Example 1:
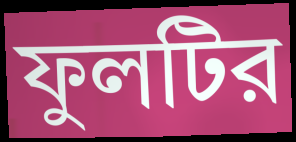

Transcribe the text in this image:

ফুলটির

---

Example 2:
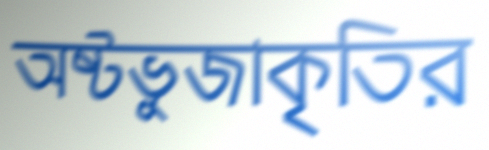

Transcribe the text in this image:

অষ্টভুজাকৃতির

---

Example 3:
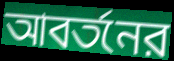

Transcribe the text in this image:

আবর্তনের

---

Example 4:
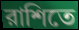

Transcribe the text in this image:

রাশিতে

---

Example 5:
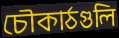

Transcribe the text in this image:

চৌকাঠগুলি